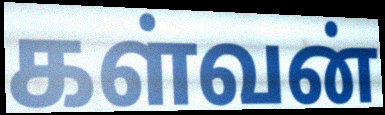
கள்வன்